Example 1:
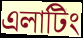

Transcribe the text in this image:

এলাটিং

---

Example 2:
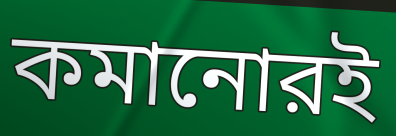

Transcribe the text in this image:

কমানোরই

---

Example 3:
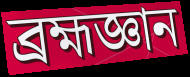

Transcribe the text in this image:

ব্রহ্মজ্ঞান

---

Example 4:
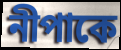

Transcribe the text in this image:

নীপাকে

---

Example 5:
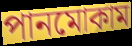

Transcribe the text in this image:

পানমোকাম